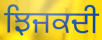
ਝਿਜਕਦੀ